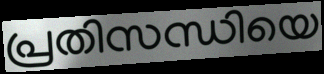
പ്രതിസന്ധിയെ